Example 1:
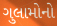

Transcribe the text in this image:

ગુલામોનો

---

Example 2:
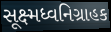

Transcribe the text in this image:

સૂક્ષ્મધ્વનિગ્રાહક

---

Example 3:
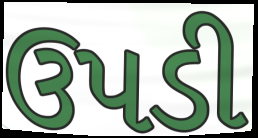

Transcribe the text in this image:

ઉપડી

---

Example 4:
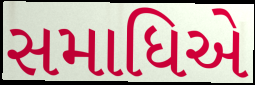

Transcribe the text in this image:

સમાધિએ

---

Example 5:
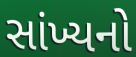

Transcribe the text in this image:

સાંખ્યનો